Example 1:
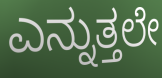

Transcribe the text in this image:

ಎನ್ನುತ್ತಲೇ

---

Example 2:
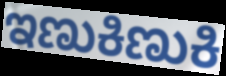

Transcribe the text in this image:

ಇಣುಕಿಣುಕಿ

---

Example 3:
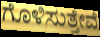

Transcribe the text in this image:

ಗೊಳಿಸುತ್ತೇವೆ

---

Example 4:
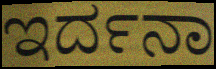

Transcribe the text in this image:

ಇರ್ದನಾ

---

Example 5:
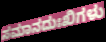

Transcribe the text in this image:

ಸಮಾನದುಃಖಿಗಳು